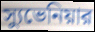
স্যুভেনিয়ার